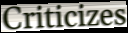
Criticizes